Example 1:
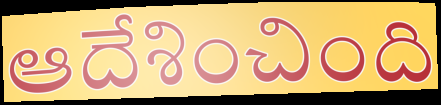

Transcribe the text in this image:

ఆదేశించింది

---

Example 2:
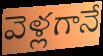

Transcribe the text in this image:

వెళ్లగానే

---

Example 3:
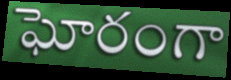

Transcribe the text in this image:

ఘోరంగా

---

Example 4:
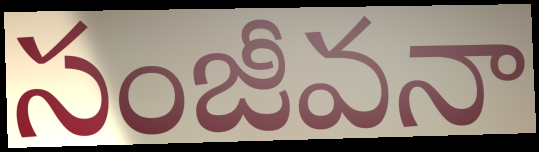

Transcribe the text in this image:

సంజీవనా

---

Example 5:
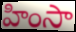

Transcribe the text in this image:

హింసా